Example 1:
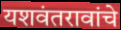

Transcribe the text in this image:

यशवंतरावांचे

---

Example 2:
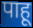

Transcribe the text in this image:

पाहू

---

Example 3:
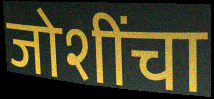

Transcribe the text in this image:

जोशींचा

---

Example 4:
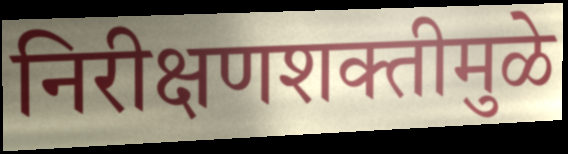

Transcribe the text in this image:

निरीक्षणशक्तीमुळे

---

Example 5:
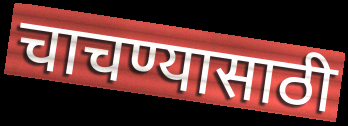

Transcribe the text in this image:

चाचण्यासाठी